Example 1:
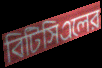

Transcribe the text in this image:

বিটিসিএলের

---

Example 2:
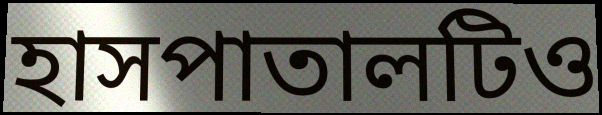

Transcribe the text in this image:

হাসপাতালটিও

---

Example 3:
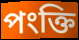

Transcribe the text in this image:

পংক্তি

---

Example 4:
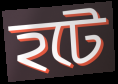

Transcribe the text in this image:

হটে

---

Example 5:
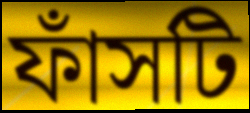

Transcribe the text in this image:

ফাঁসটি